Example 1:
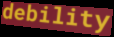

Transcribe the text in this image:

debility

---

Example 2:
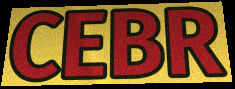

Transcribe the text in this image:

CEBR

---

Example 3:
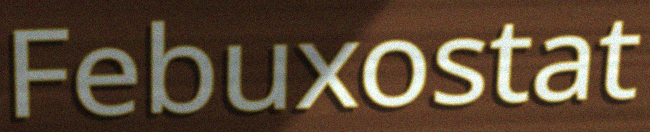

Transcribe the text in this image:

Febuxostat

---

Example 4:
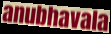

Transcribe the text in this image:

anubhavala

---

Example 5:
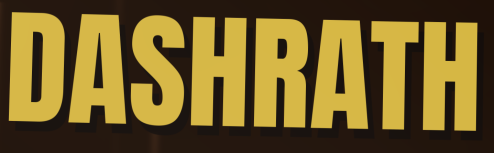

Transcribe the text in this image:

DASHRATH